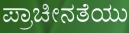
ಪ್ರಾಚೀನತೆಯು